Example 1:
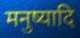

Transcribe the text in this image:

मनुष्यादि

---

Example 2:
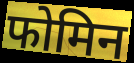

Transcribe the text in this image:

फोमिन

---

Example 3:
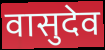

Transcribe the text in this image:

वासुदेव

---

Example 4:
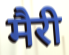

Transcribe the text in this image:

मैरी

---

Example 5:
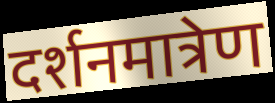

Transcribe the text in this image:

दर्शनमात्रेण